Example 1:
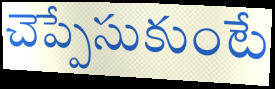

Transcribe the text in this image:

చెప్పేసుకుంటే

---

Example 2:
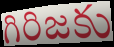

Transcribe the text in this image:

గిరిజకు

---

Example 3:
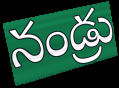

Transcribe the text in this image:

నండ్రు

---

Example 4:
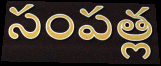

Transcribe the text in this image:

సంపత్ల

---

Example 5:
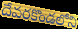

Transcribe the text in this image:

దేవరకొండలోని